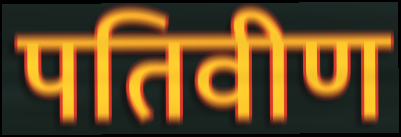
पतिवीण